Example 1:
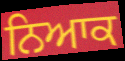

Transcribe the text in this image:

ਨਿਆਕ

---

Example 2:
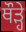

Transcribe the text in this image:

ਥੌੜ੍ਹੇ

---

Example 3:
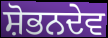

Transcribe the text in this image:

ਸ਼ੋਭਨਦੇਵ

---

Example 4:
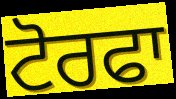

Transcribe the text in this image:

ਟੋਰਫਾ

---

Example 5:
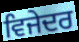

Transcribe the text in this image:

ਵਿਜੇਦਰ